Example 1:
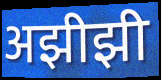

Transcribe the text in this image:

अझीझी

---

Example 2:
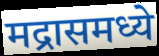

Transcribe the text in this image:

मद्रासमध्ये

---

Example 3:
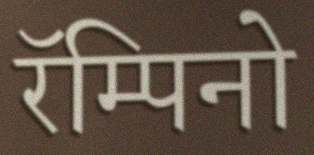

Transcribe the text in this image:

रॅम्पिनो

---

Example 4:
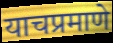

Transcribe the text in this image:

याचप्रमाणे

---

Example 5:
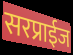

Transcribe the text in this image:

सरप्राईज